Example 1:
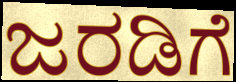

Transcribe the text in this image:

ಜರಡಿಗೆ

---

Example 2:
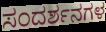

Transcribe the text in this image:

ಸಂದರ್ಶನಗಳ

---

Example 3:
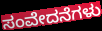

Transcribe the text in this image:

ಸಂವೇದನೆಗಳು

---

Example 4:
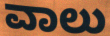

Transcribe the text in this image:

ವಾಲು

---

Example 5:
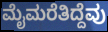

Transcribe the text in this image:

ಮೈಮರೆತಿದ್ದೆವು